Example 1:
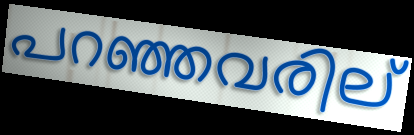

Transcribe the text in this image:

പറഞ്ഞവരില്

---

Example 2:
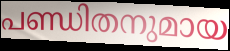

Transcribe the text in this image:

പണ്ഡിതനുമായ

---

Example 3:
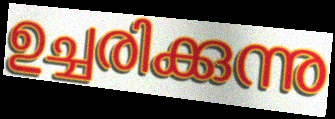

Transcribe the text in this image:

ഉച്ചരിക്കുന്നു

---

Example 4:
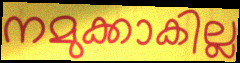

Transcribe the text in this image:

നമുക്കാകില്ല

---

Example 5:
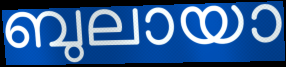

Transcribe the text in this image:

ബുലായാ